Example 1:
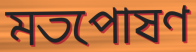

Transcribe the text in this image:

মতপোষণ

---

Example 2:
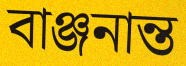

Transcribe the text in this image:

বাঞ্জনান্ত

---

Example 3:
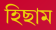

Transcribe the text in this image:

হিছাম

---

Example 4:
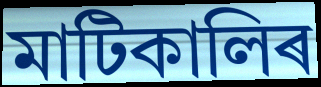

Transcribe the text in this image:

মাটিকালিৰ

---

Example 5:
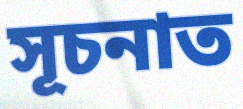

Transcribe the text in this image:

সূচনাত